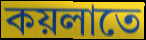
কয়লাতে